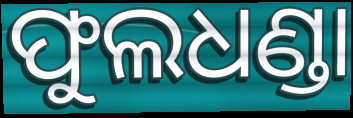
ଫୁଲଧଣ୍ଡା